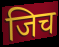
जिच